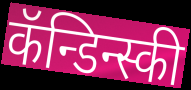
कॅन्डिन्स्की